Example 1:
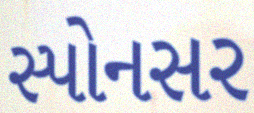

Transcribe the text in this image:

સ્પોનસર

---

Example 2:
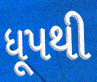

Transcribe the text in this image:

ધૂપથી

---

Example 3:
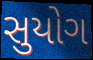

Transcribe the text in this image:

સુયોગ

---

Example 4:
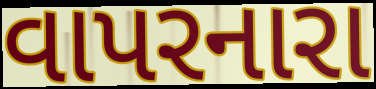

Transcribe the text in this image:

વાપરનારા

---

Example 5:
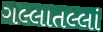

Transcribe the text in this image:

ગલ્લાતલ્લાં